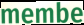
membe